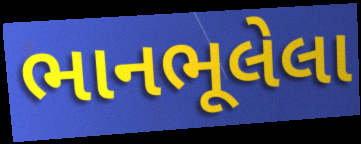
ભાનભૂલેલા